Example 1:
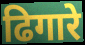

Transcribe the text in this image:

ढिगारे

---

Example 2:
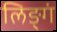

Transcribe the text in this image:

लिङ्गं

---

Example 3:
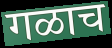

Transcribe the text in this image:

गळाच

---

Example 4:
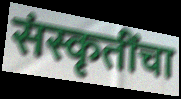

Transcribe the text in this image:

संस्कृतींचा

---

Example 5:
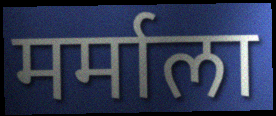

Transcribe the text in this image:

मर्माला